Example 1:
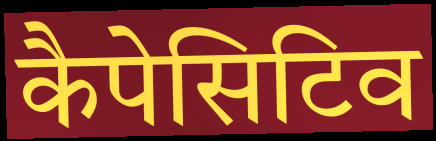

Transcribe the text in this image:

कैपेसिटिव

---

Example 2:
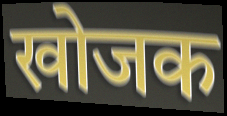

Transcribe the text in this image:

खोजक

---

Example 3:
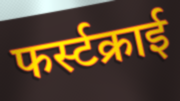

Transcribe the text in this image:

फर्स्टक्राई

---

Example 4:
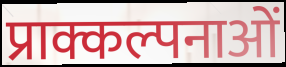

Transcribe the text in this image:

प्राक्कल्पनाओं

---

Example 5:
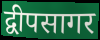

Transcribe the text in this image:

द्वीपसागर